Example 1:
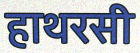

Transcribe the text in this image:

हाथरसी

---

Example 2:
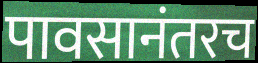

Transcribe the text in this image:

पावसानंतरच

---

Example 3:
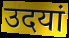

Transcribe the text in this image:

उदयां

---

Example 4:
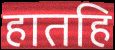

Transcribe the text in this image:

हातहि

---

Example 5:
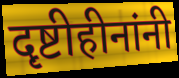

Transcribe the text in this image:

दृष्टीहीनांनी